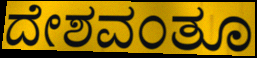
ದೇಶವಂತೂ